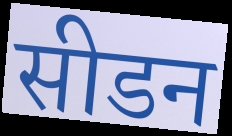
सीडन